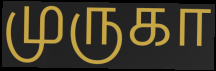
முருகா